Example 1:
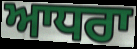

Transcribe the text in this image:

ਆਧਰਾ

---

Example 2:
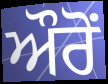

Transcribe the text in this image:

ਔਰੋਂ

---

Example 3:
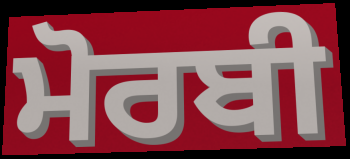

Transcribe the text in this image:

ਮੋਰਬੀ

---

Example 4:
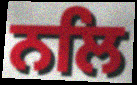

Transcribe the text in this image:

ਨਲਿ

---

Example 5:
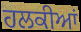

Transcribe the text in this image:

ਹਲਕੀਆਂ